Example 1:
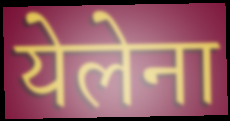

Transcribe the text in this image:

येलेना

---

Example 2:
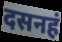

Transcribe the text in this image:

दसनहं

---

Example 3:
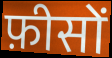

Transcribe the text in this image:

फ़ीसों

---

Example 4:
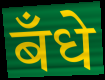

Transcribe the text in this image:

बँधे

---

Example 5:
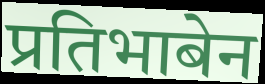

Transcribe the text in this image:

प्रतिभाबेन